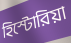
হিস্টোরিয়া